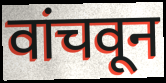
वांचवून